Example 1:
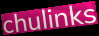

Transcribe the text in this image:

chulinks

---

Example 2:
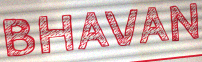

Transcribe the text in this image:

BHAVAN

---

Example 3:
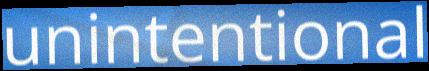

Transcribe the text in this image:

unintentional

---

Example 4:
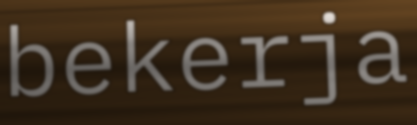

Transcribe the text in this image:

bekerja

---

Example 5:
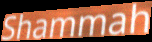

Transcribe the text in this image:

Shammah